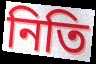
নিতি